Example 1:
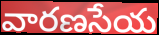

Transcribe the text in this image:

వారణసేయ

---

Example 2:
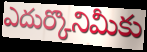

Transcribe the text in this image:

ఎదుర్కొనిమీకు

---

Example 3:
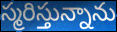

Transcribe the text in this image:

స్మరిస్తున్నాను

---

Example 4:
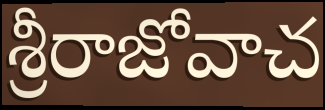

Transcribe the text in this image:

శ్రీరాజోవాచ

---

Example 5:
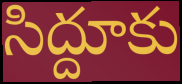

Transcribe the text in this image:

సిద్దూకు